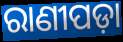
ରାଣୀପଡ଼ା